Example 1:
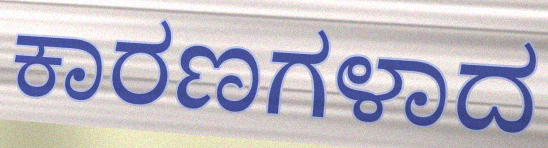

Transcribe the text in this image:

ಕಾರಣಗಳಾದ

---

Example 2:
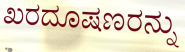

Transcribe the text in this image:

ಖರದೂಷಣರನ್ನು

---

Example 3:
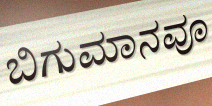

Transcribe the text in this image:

ಬಿಗುಮಾನವೂ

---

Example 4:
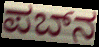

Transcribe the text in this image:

ಪಬ್‌ನ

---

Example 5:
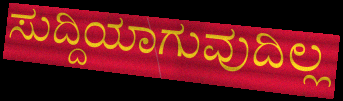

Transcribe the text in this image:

ಸುದ್ದಿಯಾಗುವುದಿಲ್ಲ